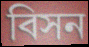
বিসন